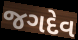
જગદેવ